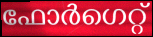
ഫോർഗെറ്റ്